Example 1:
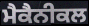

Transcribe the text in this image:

ਮੈਕੈਨੀਕਲ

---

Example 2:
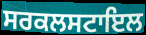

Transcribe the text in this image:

ਸਰਕਲਸਟਾਇਲ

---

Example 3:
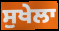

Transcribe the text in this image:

ਸੁਖੇਲਾ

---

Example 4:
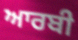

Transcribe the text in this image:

ਆਰਬੀ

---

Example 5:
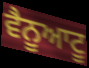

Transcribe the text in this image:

ਵੈਨੂਆਟੂ